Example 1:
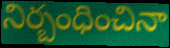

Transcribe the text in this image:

నిర్బంధించినా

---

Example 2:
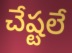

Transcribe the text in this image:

చేష్టలే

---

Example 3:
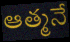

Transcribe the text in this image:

ఆత్మనే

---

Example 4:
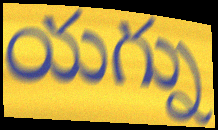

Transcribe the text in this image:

యగ్ను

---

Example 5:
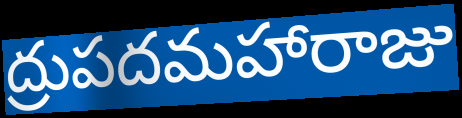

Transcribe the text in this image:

ద్రుపదమహారాజు